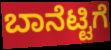
ಬಾನೆಟ್ಟಿಗೆ